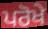
ਪਰੋਖੇ